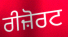
ਰੀਜ਼ੋਰਟ